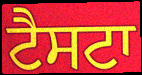
ਟੈਸਟਾ